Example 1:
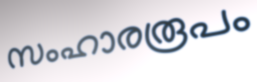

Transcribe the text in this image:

സംഹാരരൂപം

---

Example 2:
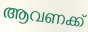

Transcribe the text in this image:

ആവണക്ക്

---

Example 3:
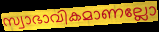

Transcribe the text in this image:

സ്വാഭാവികമാണല്ലോ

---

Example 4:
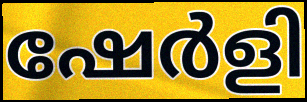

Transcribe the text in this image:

ഷേർളി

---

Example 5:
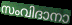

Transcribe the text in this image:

സംവിദാനാ